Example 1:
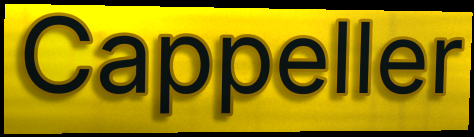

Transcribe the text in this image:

Cappeller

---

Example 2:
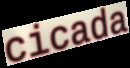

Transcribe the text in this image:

cicada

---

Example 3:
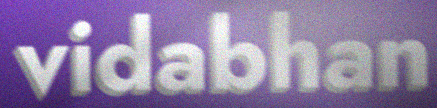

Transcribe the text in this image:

vidabhan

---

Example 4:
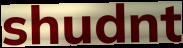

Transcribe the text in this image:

shudnt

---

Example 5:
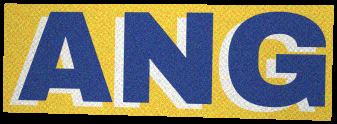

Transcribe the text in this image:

ANG